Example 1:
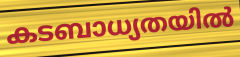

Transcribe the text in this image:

കടബാധ്യതയിൽ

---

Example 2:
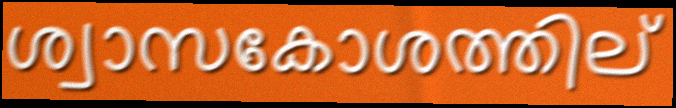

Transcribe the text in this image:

ശ്വാസകോശത്തില്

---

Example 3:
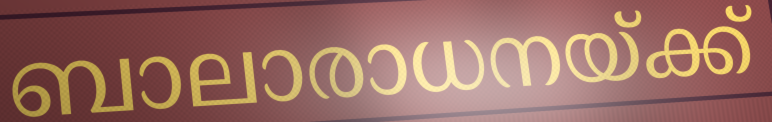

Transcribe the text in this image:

ബാലാരാധനയ്ക്ക്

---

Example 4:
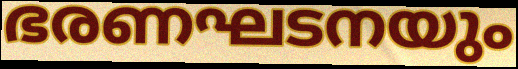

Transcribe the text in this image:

ഭരണഘടനയും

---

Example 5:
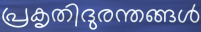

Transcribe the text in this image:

പ്രകൃതിദുരന്തങ്ങൾ